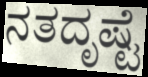
ನತದೃಷ್ಟೆ